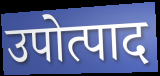
उपोत्पाद